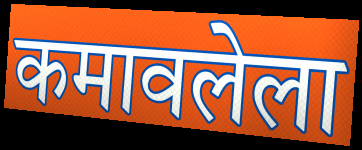
कमावलेला